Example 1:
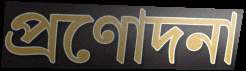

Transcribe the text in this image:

প্রণোদনা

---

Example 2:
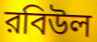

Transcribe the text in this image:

রবিউল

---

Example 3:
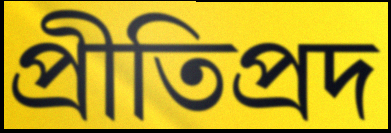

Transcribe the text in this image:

প্রীতিপ্রদ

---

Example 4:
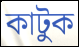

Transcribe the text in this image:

কাটুক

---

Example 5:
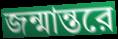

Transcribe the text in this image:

জন্মান্তরে